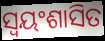
ସ୍ୱୟଂଶାସିତ